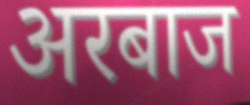
अरबाज